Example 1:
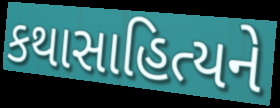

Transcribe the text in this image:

કથાસાહિત્યને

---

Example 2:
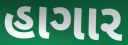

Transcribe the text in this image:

હાગાર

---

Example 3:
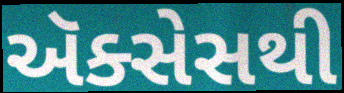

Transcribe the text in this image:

ઍક્સેસથી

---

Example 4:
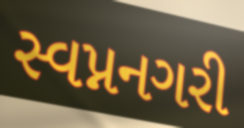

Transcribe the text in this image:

સ્વપ્નનગરી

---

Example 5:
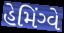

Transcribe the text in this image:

હેમિંગ્વે